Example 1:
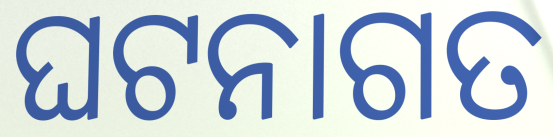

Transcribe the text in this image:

ଘଟନାଗତ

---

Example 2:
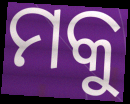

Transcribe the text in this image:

ମକୁ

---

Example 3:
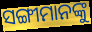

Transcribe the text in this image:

ସଙ୍ଗୀମାନଙ୍କୁ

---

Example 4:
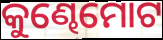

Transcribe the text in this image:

କୁଣ୍ଢେମୋଟ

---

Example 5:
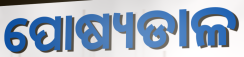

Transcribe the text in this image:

ପୋଷ୍ୟଡାଳ